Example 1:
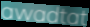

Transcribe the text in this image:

awadtat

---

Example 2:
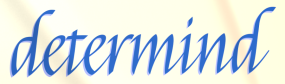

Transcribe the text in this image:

determind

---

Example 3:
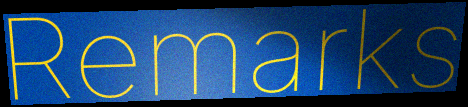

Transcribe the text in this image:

Remarks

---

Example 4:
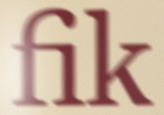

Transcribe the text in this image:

fik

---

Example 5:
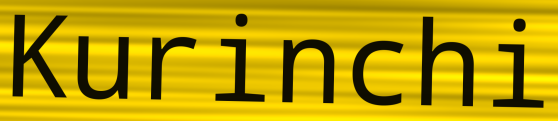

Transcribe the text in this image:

Kurinchi